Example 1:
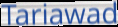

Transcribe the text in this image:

Tariawad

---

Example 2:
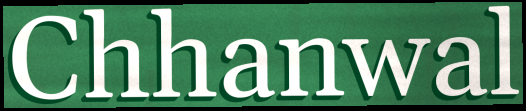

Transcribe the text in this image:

Chhanwal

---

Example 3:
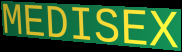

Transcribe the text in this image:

MEDISEX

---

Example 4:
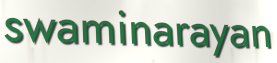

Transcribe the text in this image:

swaminarayan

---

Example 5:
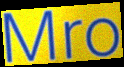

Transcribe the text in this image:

Mro